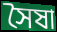
সৈষা